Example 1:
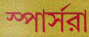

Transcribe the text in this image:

স্পার্সরা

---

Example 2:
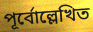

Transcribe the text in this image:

পূর্বোল্লেখিত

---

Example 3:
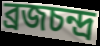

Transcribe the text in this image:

ব্রজচন্দ্র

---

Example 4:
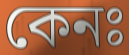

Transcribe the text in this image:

কেনঃ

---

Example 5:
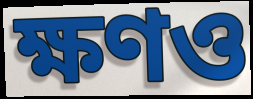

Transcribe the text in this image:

ক্ষণও